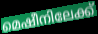
മെഷീനിലേക്ക്